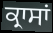
ਕ੍ਰਾਸਾਂ